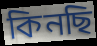
কিনছি